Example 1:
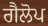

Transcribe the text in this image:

ਗੈਲੋਪ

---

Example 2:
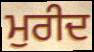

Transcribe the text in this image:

ਮੁਰੀਦ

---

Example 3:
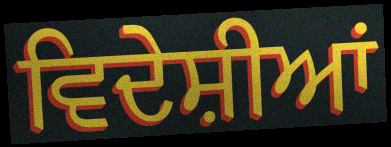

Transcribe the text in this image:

ਵਿਦੇਸ਼ੀਆਂ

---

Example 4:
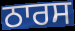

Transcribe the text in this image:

ਠਾਰਸ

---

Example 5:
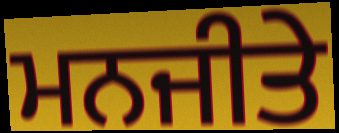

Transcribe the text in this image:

ਮਨਜੀਤੇ